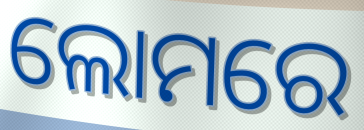
ଲୋମରେ